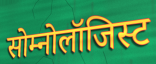
सोम्नोलॉजिस्ट